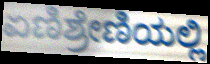
ಏಣಿಶ್ರೇಣಿಯಲ್ಲಿ